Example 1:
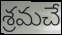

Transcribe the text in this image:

శ్రమచే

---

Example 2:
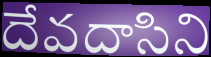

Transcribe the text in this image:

దేవదాసిని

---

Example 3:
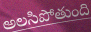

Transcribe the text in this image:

అలసిపోతుంది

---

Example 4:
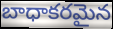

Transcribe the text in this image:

బాధాకరమైన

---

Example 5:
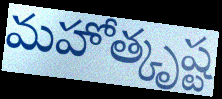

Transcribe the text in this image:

మహోత్కృష్ట